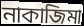
নাকাজিমা